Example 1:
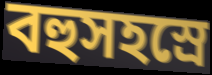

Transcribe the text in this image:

বহুসহস্রে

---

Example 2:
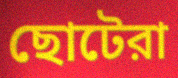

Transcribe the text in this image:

ছোটেরা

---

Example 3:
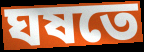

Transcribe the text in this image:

ঘষতে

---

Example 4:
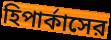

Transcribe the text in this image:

হিপার্কাসের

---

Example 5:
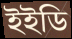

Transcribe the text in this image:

ইইডি